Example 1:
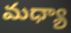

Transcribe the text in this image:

మధ్యా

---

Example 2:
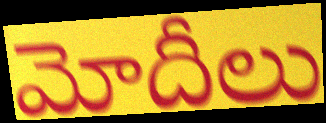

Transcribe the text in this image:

మోదీలు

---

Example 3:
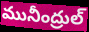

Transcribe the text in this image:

మునీంద్రుల్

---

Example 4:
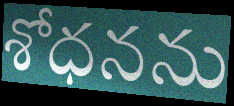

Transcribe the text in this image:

శోధనను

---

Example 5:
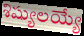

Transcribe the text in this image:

శిష్యులయ్యే